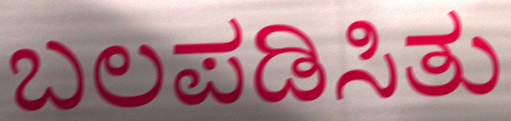
ಬಲಪಡಿಸಿತು